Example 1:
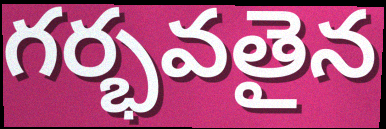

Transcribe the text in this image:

గర్భవతైన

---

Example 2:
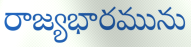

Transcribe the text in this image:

రాజ్యభారమును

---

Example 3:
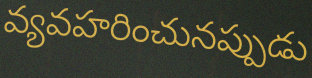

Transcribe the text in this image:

వ్యవహరించునప్పుడు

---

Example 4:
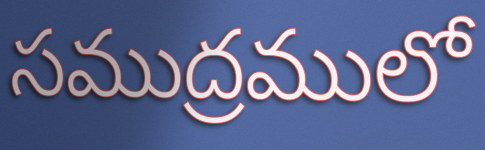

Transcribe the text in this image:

సముద్రములో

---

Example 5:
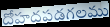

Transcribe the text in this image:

దోహదపడగలము